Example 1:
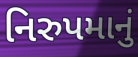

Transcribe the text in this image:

નિરુપમાનું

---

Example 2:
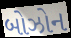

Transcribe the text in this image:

બોઝોન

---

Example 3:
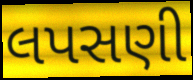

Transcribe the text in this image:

લપસણી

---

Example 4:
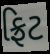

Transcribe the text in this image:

ફ્રિટ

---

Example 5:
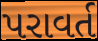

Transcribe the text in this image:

પરાવર્ત